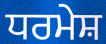
ਧਰਮੇਸ਼